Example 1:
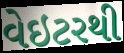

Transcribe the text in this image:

વેઇટરથી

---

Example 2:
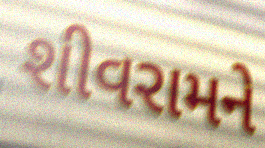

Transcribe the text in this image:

શીવરામને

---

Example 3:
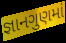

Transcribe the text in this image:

જ્ઞાનગુણમાં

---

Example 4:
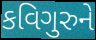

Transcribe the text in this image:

કવિગુરુને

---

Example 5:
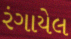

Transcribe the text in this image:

રંગાયેલ